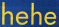
hehe